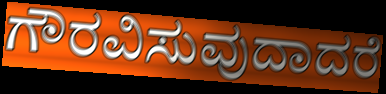
ಗೌರವಿಸುವುದಾದರೆ